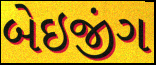
બેઇજીંગ